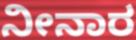
ನೀನಾರ